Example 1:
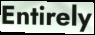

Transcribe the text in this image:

Entirely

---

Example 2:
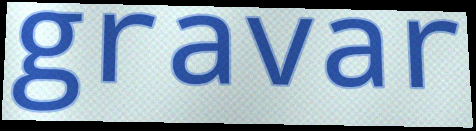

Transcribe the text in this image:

gravar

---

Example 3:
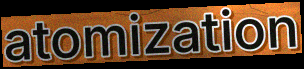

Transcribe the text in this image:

atomization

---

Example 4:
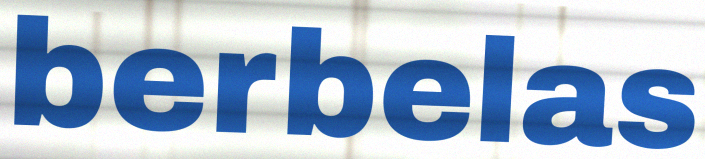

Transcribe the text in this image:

berbelas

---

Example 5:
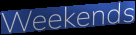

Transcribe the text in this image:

Weekends